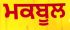
ਮਕਬੂਲ